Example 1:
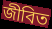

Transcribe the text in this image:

জীবিত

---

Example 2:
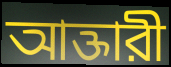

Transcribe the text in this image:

আক্তারী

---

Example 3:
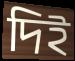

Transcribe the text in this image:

দিই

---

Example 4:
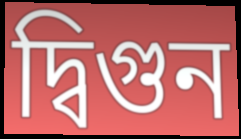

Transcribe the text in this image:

দ্বিগুন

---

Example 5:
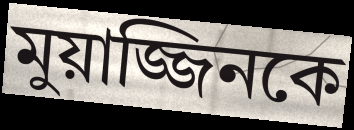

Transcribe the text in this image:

মুয়াজ্জিনকে